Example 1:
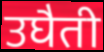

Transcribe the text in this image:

उघैती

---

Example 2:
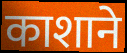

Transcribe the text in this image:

काशाने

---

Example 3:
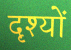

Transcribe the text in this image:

दृश्यों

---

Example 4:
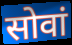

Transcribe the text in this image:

सोवां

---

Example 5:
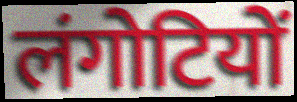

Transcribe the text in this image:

लंगोटियों